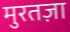
मुरतज़ा